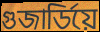
গুজাৰ্ডিয়ে